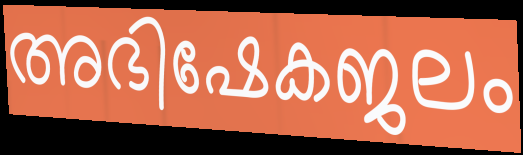
അഭിഷേകജലം